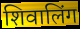
शिवालिंग